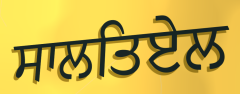
ਸਾਲਤਿਏਲ